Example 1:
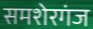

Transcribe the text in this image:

समशेरगंज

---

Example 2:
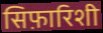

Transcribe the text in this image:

सिफ़ारिशी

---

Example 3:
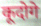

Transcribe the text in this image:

कूदोगे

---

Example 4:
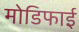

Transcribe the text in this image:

मोडिफाई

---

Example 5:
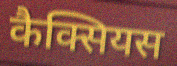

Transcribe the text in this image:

कैक्सियस